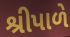
શ્રીપાળે